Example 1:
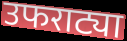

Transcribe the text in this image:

उफराट्या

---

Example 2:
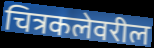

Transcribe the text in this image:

चित्रकलेवरील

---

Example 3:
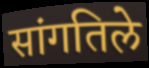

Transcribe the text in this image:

सांगतिले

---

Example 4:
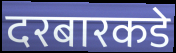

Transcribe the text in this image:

दरबारकडे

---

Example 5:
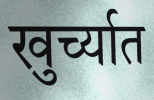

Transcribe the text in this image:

खुर्च्यात